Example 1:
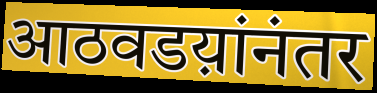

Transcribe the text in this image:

आठवडय़ांनंतर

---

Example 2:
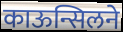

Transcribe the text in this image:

काऊन्सिलने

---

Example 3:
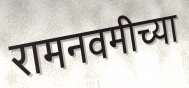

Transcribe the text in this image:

रामनवमीच्या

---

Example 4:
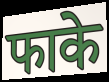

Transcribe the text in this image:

फाके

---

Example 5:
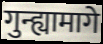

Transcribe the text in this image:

गुन्ह्यामागे